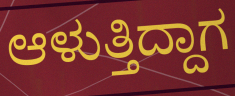
ಆಳುತ್ತಿದ್ದಾಗ